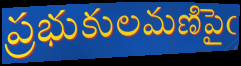
ప్రభుకులమణిపైఁ